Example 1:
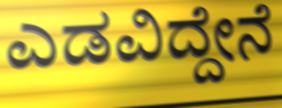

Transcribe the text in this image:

ಎಡವಿದ್ದೇನೆ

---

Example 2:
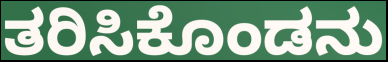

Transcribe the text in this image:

ತರಿಸಿಕೊಂಡನು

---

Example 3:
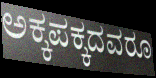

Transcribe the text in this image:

ಅಕ್ಕಪಕ್ಕದವರೂ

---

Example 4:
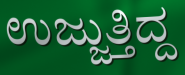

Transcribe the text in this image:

ಉಜ್ಜುತ್ತಿದ್ದ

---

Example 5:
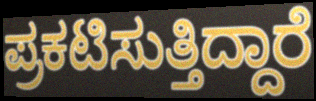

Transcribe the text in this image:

ಪ್ರಕಟಿಸುತ್ತಿದ್ದಾರೆ